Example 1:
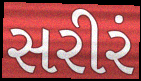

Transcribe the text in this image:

સરીરં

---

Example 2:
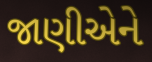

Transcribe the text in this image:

જાણીએને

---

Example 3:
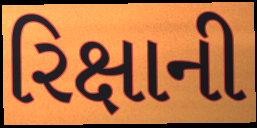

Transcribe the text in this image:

રિક્ષાની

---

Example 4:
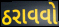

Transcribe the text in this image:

ઠરાવવો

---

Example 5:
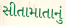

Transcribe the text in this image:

સીતામાતાનું